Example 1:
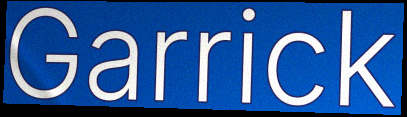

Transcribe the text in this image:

Garrick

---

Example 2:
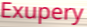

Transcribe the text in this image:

Exupery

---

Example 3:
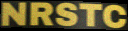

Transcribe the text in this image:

NRSTC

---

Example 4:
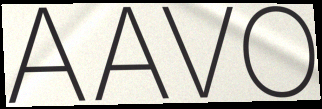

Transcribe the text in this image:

AAVO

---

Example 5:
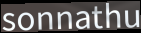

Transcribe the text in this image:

sonnathu